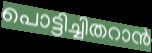
പൊട്ടിച്ചിതറാൻ